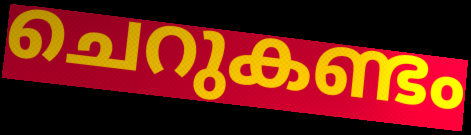
ചെറുകണ്ടം